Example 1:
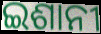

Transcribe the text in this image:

ଇଶାନୀ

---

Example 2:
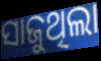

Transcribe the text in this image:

ସାଜୁଥିଲା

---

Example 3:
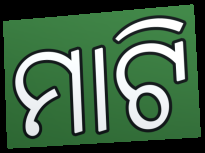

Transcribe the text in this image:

ମାଟି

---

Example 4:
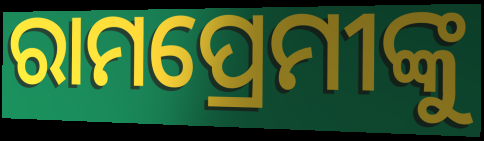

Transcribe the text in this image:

ରାମପ୍ରେମୀଙ୍କୁ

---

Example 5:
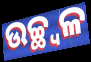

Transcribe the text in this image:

ଉଚ୍ଛ୍ଵଳ